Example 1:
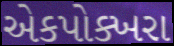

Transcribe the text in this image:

એકપોક્ખરા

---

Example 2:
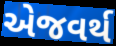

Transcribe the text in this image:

એજવર્થ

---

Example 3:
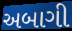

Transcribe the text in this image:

અબાગી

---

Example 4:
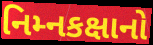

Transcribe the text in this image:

નિમ્નકક્ષાનો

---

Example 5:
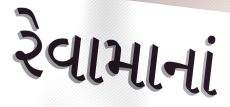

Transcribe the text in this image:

રેવામાનાં